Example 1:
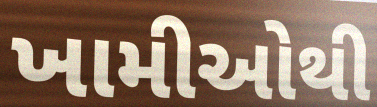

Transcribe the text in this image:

ખામીઓથી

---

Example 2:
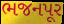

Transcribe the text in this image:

ભજનપૂર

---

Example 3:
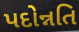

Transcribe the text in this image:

પદોન્નતિ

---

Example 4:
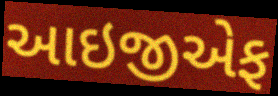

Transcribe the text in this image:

આઇજીએફ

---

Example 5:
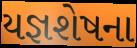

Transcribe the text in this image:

યજ્ઞશેષના